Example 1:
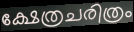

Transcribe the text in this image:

ക്ഷേത്രചരിത്രം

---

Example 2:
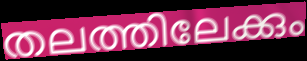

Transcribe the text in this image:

തലത്തിലേക്കും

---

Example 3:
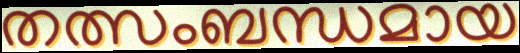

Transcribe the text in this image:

തത്സംബന്ധമായ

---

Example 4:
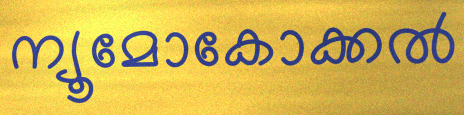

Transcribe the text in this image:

ന്യൂമോകോക്കൽ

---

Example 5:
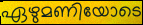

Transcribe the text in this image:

ഏഴുമണിയോടെ